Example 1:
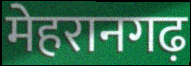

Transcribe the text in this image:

मेहरानगढ़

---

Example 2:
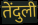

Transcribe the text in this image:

तेंदुली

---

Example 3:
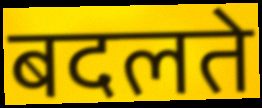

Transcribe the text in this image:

बदलते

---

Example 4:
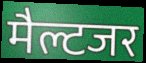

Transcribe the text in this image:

मैल्टजर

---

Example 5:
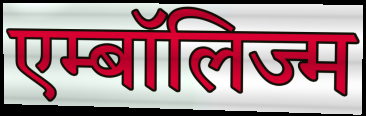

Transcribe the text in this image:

एम्बॉलिज्म